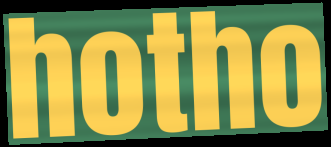
hotho